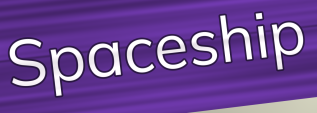
Spaceship